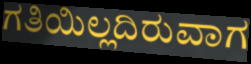
ಗತಿಯಿಲ್ಲದಿರುವಾಗ